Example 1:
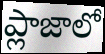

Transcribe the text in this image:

ప్లాజాలో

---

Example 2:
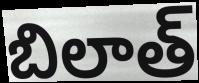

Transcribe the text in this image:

బిలాత్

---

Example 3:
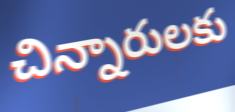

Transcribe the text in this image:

చిన్నారులకు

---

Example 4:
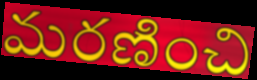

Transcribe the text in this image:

మరణించి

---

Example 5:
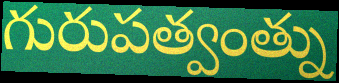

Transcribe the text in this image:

గురుపత్వంత్ను